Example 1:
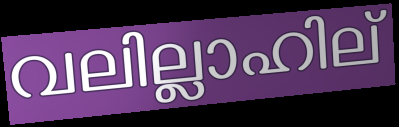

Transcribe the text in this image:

വലില്ലാഹില്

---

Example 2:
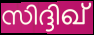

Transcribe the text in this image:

സിദ്ദിഖ്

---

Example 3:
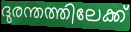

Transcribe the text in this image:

ദുരന്തത്തിലേക്ക്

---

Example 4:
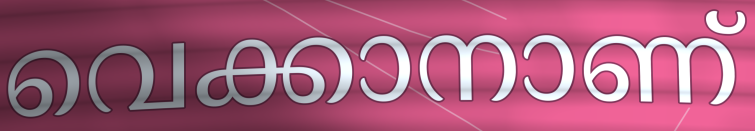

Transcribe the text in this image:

വെക്കാനാണ്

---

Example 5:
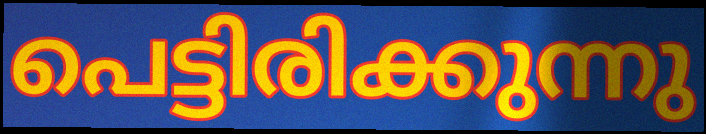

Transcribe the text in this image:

പെട്ടിരിക്കുന്നു